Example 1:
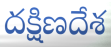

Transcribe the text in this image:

దక్షిణదేశ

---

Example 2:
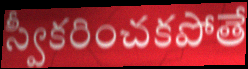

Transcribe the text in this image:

స్వీకరించకపోతే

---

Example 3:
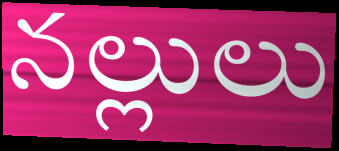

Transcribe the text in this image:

నల్లులు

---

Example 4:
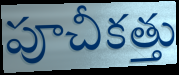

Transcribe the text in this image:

పూచీకత్తు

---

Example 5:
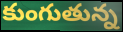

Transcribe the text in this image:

కుంగుతున్న